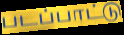
படப்பாட்டு